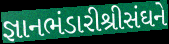
જ્ઞાનભંડારીશ્રીસંઘને